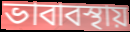
ভাবাবস্থায়